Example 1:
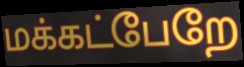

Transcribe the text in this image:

மக்கட்பேறே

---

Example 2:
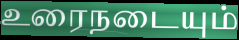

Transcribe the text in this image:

உரைநடையும்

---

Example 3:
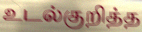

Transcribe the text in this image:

உடல்குறித்த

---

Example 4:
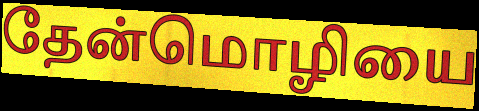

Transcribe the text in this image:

தேன்மொழியை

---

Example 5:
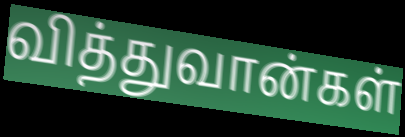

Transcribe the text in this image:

வித்துவான்கள்